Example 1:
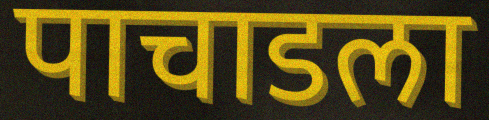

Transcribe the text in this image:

पाचाडला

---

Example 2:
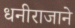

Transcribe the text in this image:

धनीराजाने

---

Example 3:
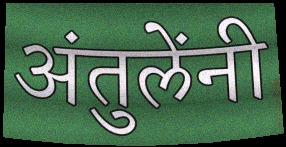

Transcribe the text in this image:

अंतुलेंनी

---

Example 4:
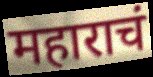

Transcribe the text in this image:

महाराचं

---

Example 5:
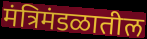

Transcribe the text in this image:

मंत्रिमंडळातील